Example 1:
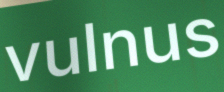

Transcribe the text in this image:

vulnus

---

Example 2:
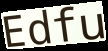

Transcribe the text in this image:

Edfu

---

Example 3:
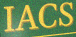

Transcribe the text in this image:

IACS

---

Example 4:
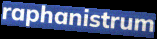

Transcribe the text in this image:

raphanistrum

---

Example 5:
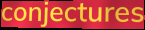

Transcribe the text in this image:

conjectures